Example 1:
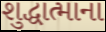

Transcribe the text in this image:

શુદ્ધાત્માના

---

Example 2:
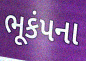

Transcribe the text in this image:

ભૂકંપના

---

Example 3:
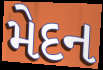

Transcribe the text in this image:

મેદન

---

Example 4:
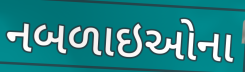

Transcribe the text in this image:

નબળાઇઓના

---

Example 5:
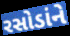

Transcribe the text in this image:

રસોડાંને